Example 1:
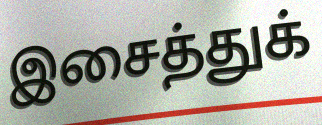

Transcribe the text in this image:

இசைத்துக்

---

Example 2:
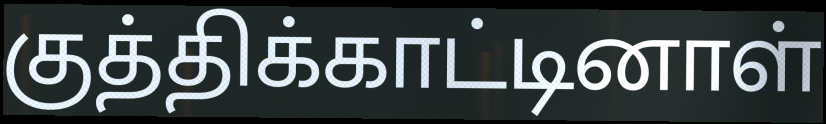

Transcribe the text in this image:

குத்திக்காட்டினாள்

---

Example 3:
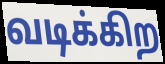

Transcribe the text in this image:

வடிக்கிற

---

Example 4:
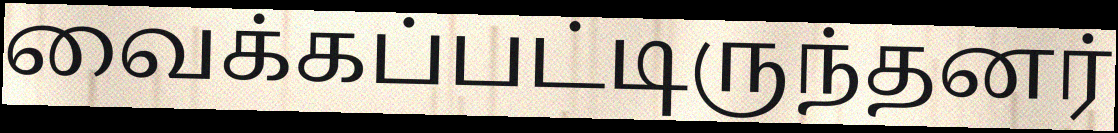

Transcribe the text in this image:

வைக்கப்பட்டிருந்தனர்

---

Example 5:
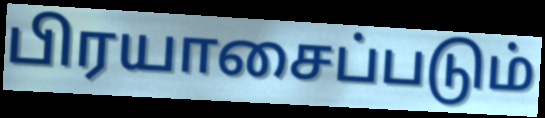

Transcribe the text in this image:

பிரயாசைப்படும்